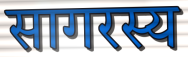
सागरस्य